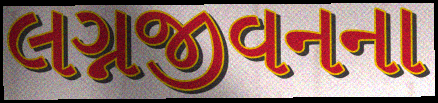
લગ્નજીવનના